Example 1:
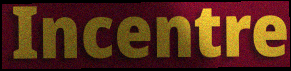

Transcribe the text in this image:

Incentre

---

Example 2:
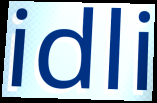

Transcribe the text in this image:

idli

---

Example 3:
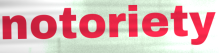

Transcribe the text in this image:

notoriety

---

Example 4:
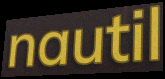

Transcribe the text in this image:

nautil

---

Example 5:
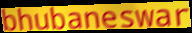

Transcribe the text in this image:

bhubaneswar